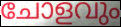
ചോളവും